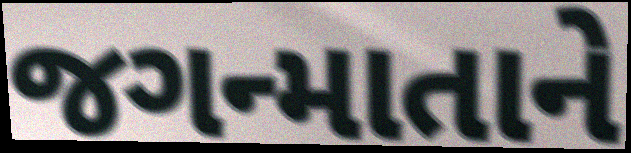
જગન્માતાને